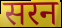
सरन